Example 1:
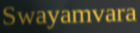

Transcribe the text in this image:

Swayamvara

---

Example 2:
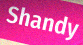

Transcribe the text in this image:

Shandy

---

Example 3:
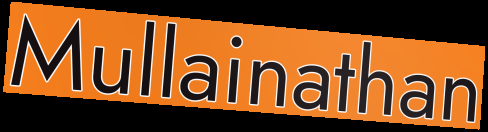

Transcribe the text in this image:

Mullainathan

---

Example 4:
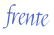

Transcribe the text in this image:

frente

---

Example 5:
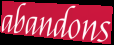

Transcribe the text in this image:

abandons